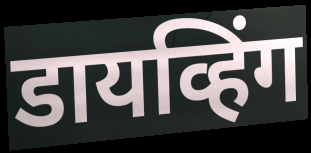
डायव्हिंग